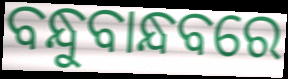
ବନ୍ଧୁବାନ୍ଧବରେ